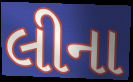
લીના